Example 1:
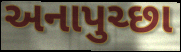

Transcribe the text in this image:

અનાપુચ્છા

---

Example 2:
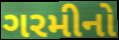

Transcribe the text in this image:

ગરમીનો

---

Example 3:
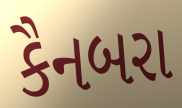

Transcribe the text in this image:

કૈનબરા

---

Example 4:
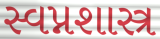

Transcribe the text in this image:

સ્વપ્નશાસ્ત્ર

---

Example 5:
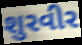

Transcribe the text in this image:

શુરવીર